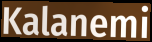
Kalanemi